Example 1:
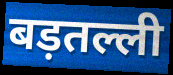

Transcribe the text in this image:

बड़तल्ली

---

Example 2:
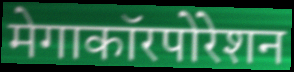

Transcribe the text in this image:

मेगाकॉरपोरेशन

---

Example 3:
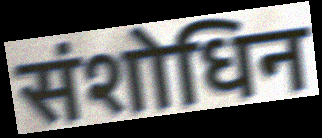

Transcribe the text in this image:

संशोधिन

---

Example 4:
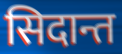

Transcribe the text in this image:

सिदान्त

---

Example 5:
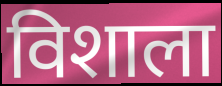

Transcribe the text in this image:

विशाला